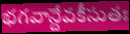
భగవాన్దేవకీసుతః